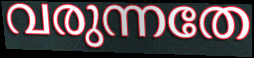
വരുന്നതേ